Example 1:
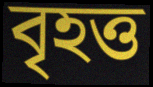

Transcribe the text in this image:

বৃহত্ত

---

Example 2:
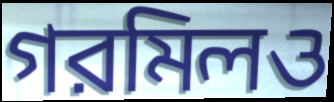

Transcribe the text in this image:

গরমিলও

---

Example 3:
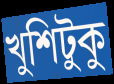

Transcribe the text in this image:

খুশিটুকু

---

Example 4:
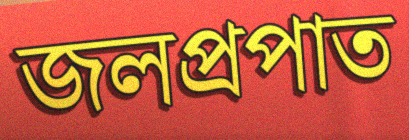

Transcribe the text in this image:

জলপ্রপাত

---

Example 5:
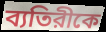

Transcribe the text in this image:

ব্যতিরীকে